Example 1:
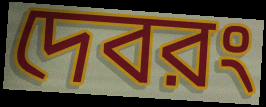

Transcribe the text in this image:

দেবরং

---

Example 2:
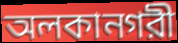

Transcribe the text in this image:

অলকানগরী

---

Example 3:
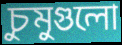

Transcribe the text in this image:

চুমুগুলো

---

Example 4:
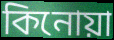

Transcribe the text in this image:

কিনোয়া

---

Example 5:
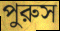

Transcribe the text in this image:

পুরুস